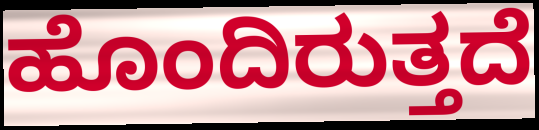
ಹೊಂದಿರುತ್ತದೆ